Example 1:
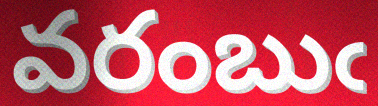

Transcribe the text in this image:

వరంబుఁ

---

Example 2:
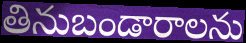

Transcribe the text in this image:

తినుబండారాలను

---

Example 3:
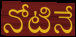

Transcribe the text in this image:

నోటినే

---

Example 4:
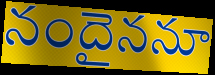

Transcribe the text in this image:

నందైననూ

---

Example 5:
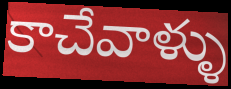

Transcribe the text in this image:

కాచేవాళ్ళు